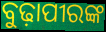
ବୁଢ଼ାପୀରଙ୍କ